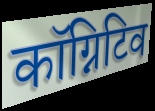
कॉग्निटिव